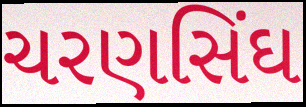
ચરણસિંઘ